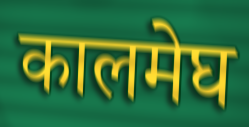
कालमेघ